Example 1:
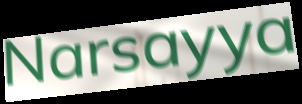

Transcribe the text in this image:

Narsayya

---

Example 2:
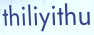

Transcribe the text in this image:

thiliyithu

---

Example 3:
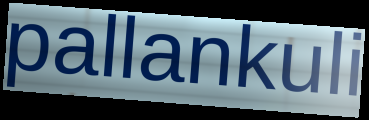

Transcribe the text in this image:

pallankuli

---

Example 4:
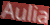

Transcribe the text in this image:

Aulia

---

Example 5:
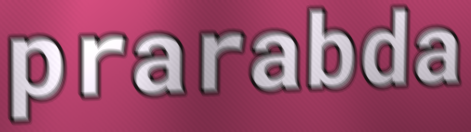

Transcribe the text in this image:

prarabda